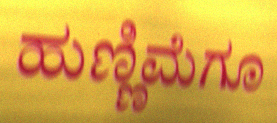
ಹುಣ್ಣಿಮೆಗೂ